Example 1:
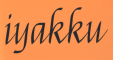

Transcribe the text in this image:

iyakku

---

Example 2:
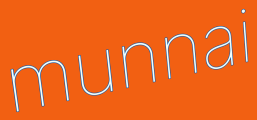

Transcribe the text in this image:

munnai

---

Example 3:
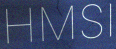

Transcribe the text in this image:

HMSI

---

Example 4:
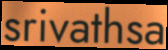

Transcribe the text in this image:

srivathsa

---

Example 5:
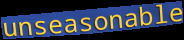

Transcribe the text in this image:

unseasonable